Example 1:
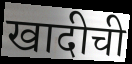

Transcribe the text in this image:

खादीची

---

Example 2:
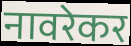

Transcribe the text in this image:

नावरेकर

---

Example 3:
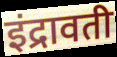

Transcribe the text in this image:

इंद्रावती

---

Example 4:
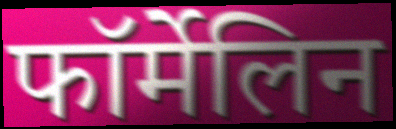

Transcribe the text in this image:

फॉर्मेलिन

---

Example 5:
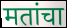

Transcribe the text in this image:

मतांचा